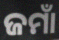
ଜମାଁ